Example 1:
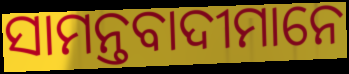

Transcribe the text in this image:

ସାମନ୍ତବାଦୀମାନେ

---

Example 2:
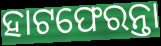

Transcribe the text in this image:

ହାଟଫେରନ୍ତା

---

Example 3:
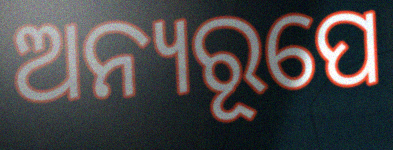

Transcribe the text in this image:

ଅନ୍ୟରୂପେ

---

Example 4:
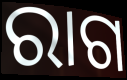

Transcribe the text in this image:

ରାଗ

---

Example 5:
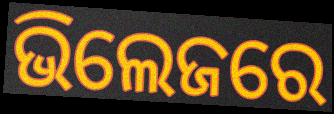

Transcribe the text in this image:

ଭିଲେଜରେ